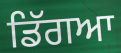
ਡਿੱਗਆ